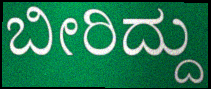
ಬೀರಿದ್ದು